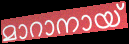
മാറാനായ്